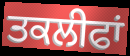
ਤਕਲੀਫਾਂ